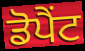
ਡੋਪੈਂਟ